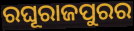
ରଘୂରାଜପୁରର